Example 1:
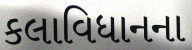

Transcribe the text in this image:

કલાવિધાનના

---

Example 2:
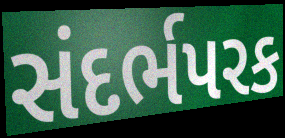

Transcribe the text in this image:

સંદર્ભપરક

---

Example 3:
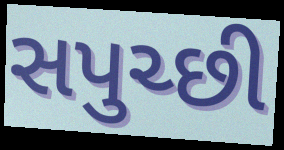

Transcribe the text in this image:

સપુચ્છી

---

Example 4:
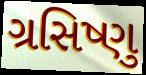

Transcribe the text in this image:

ગ્રસિષ્ણુ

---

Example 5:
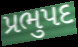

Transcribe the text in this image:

પ્રભુપદ